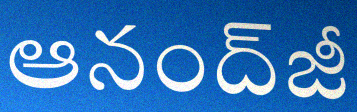
ఆనంద్‌జీ